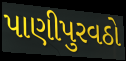
પાણીપુરવઠો